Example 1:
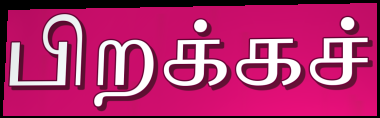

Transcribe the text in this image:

பிறக்கச்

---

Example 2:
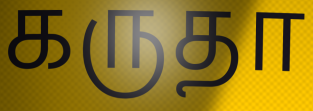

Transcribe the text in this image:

கருதா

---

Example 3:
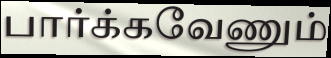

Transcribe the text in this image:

பார்க்கவேணும்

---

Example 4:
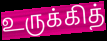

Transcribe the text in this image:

உருக்கித்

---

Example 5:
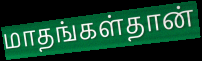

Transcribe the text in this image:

மாதங்கள்தான்